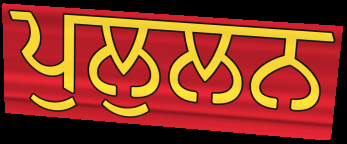
ਪੁਲੁਲਨ